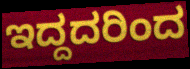
ಇದ್ದದರಿಂದ